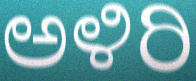
ಅಳಿರಿ